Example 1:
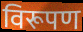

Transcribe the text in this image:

विरूपण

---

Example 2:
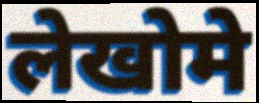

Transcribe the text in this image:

लेखोमे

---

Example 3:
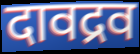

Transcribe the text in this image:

दावद्रव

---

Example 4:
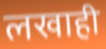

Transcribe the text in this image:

लखाही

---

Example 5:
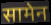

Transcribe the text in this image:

सामेन